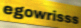
egowrisss